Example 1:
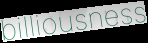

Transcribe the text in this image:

billiousness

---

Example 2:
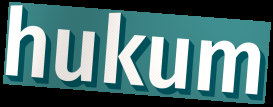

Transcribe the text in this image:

hukum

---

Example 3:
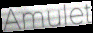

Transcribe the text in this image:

Amulet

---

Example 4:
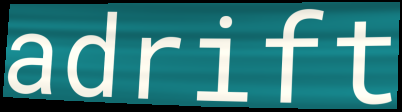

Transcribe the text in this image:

adrift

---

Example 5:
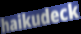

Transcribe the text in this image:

haikudeck